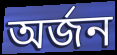
অৰ্জন